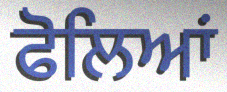
ਫੋਲਿਆਂ